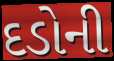
દડોની